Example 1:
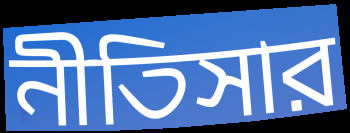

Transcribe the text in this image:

নীতিসার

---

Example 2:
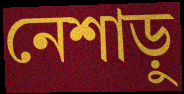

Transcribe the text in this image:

নেশাড়ু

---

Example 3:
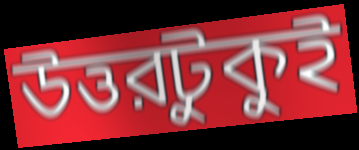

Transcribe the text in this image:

উত্তরটুকুই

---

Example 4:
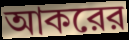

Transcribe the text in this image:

আকরের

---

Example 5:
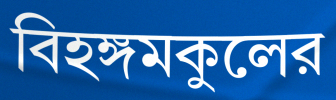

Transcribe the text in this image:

বিহঙ্গমকুলের